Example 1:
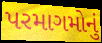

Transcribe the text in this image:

પરમાગમોનું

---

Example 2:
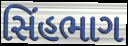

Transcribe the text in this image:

સિંહભાગ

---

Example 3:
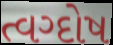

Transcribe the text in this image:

ત્વગ્દોષ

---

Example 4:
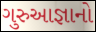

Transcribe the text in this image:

ગુરુઆજ્ઞાનો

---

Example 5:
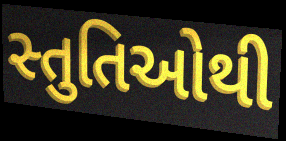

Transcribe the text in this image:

સ્તુતિઓથી